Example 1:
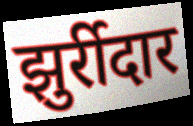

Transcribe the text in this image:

झुर्रीदार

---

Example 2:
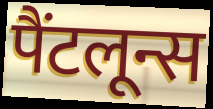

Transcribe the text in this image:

पैंटलून्स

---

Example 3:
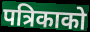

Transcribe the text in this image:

पत्रिकाको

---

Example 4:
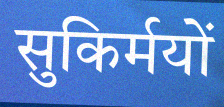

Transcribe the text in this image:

सुकिर्मयों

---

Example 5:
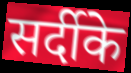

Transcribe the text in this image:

सर्दीके